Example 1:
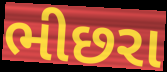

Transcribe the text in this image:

ભીછરા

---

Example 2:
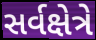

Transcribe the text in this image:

સર્વક્ષેત્રે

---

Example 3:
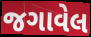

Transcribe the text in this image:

જગાવેલ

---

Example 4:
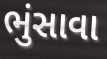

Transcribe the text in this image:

ભુંસાવા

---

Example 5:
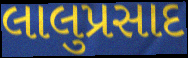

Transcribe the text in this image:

લાલુપ્રસાદ